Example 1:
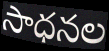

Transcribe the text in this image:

సాధనల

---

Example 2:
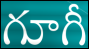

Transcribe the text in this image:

గూగీ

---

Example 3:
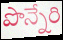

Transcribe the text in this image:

పొన్నేరి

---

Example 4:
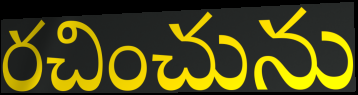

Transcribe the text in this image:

రచించును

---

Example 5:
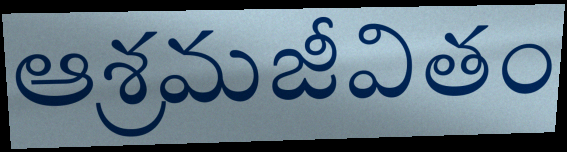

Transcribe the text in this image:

ఆశ్రమజీవితం